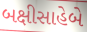
બક્ષીસાહેબે